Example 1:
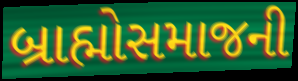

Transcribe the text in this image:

બ્રાહ્મોસમાજની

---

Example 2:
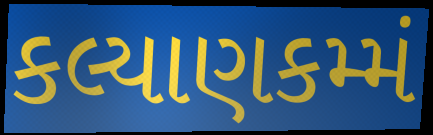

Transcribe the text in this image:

કલ્યાણકમ્મં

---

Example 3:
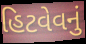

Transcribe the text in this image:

હિટવેવનું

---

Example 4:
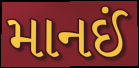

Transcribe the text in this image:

માનઈં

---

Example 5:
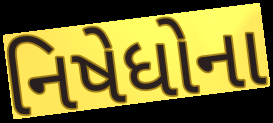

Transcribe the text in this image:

નિષેધોના